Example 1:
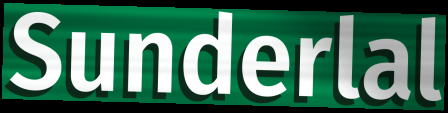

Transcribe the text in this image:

Sunderlal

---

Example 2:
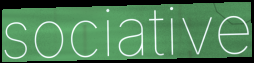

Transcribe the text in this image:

sociative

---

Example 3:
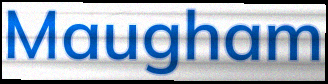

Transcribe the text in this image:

Maugham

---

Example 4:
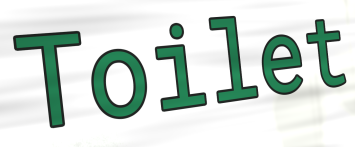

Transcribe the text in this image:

Toilet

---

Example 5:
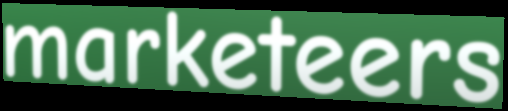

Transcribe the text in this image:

marketeers